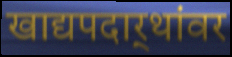
खाद्यपदार्थांवर